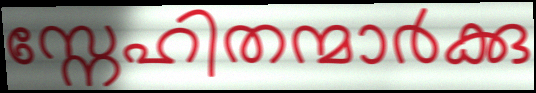
സ്നേഹിതന്മാർക്കു